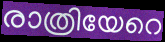
രാത്രിയേറെ